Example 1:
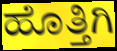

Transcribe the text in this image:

ಹೊತ್ತಿಗಿ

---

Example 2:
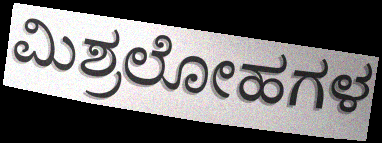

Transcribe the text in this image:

ಮಿಶ್ರಲೋಹಗಳ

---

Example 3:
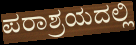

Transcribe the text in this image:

ಪರಾಶ್ರಯದಲ್ಲಿ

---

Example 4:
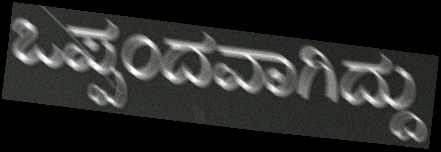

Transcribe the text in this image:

ಒಪ್ಪಂದವಾಗಿದ್ದು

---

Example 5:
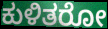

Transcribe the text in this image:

ಕುಳಿತರೋ